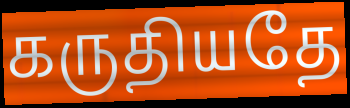
கருதியதே